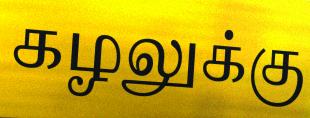
கழலுக்கு